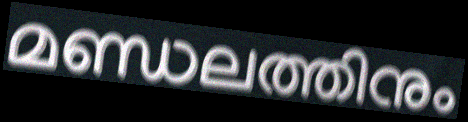
മണ്ഡലത്തിനും